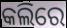
କଲିରେ